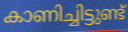
കാണിച്ചിട്ടുണ്ട്